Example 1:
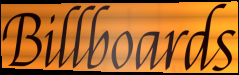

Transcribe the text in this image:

Billboards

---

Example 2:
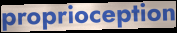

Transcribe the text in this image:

proprioception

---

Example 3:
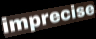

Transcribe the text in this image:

imprecise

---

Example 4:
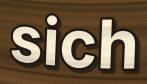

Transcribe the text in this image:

sich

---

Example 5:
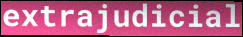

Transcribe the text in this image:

extrajudicial